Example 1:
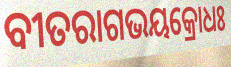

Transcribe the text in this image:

ବୀତରାଗଭୟକ୍ରୋଧଃ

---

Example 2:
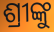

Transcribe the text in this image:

ଶ୍ରୀଙ୍କୁ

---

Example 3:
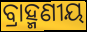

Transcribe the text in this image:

ବ୍ରାହ୍ମଣୀୟ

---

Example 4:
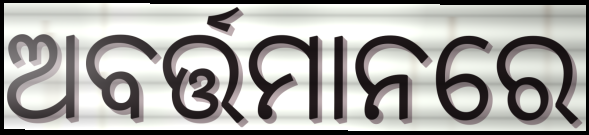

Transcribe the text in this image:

ଅବର୍ତ୍ତମାନରେ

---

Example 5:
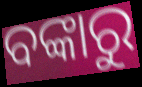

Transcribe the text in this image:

ବଙ୍କାରୁ